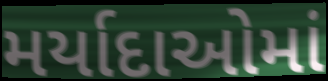
મર્યાદાઓમાં